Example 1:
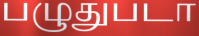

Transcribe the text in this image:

பழுதுபடா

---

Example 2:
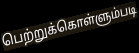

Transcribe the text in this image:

பெற்றுக்கொள்ளும்படி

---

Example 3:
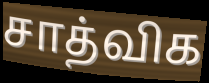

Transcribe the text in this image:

சாத்விக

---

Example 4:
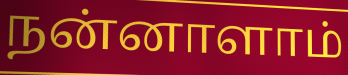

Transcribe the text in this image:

நன்னாளாம்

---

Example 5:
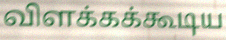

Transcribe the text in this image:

விளக்கக்கூடிய